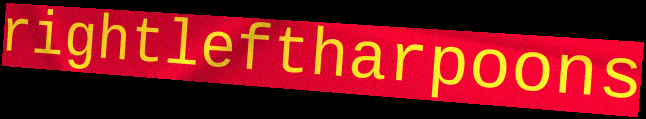
rightleftharpoons